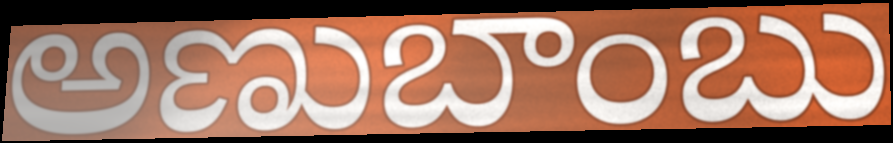
అణుబాంబు